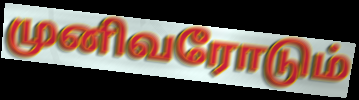
முனிவரோடும்